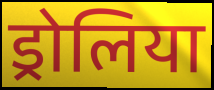
ड्रोलिया